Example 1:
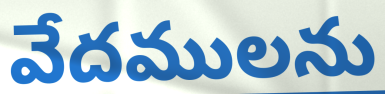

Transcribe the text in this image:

వేదములను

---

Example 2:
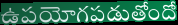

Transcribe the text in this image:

ఉపయోగపడుతోందో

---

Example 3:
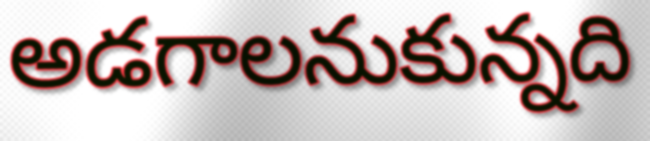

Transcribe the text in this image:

అడగాలనుకున్నది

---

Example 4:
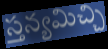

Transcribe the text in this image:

స్తన్యమిచ్చి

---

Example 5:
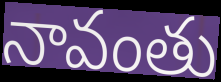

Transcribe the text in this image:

నావంతు